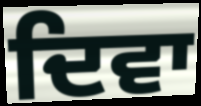
ਦਿਵਾ